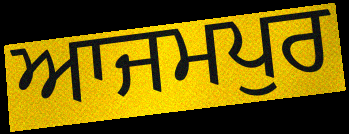
ਆਜਮਪੁਰ